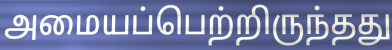
அமையப்பெற்றிருந்தது